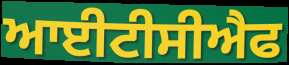
ਆਈਟੀਸੀਐਫ